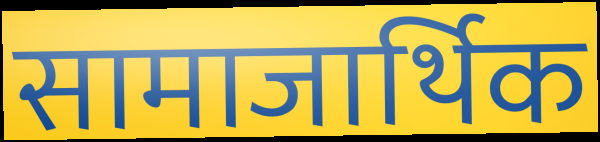
सामाजार्थिक